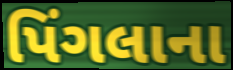
પિંગલાના